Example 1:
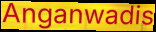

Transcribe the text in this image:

Anganwadis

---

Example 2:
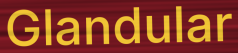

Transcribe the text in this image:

Glandular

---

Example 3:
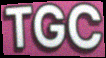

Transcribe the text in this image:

TGC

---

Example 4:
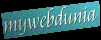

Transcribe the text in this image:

mywebdunia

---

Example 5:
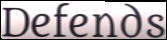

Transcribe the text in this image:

Defends